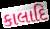
કાલાદિ